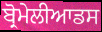
ਬ੍ਰੋਮੇਲੀਆਡਸ